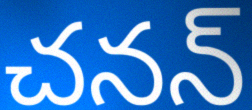
చనన్